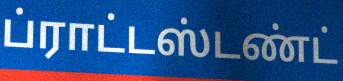
ப்ராட்டஸ்டண்ட்